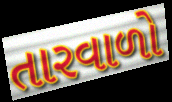
તારવાળો